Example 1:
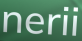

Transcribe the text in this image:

nerii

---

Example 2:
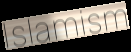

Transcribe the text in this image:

Islamism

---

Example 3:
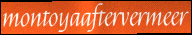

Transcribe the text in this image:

montoyaaftervermeer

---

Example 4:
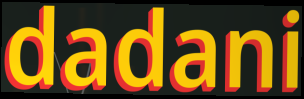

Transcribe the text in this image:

dadani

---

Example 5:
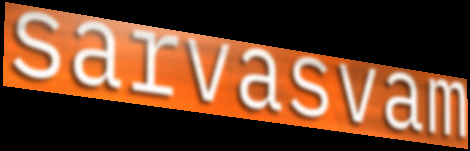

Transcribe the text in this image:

sarvasvam